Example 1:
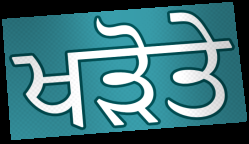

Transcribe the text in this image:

ਖੜੋਤੇ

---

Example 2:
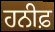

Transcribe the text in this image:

ਹਨੀਫ਼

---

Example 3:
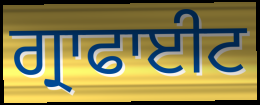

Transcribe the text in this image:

ਗ੍ਰਾਫਾਈਟ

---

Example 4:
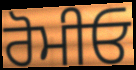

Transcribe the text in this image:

ਰੋਮੀਓ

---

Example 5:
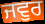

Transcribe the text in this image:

ਜਵੁਰ